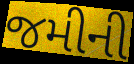
જમીની